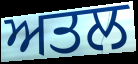
ਅਤਲ